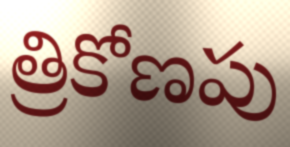
త్రికోణపు